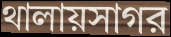
থালায়সাগর